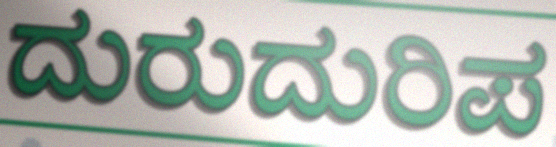
ದುರುದುರಿಪ